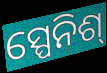
ସ୍ପେନିଶ୍